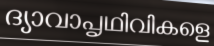
ദ്യാവാപൃഥിവികളെ